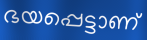
ഭയപ്പെട്ടാണ്